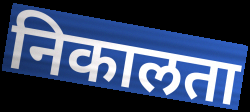
निकालता